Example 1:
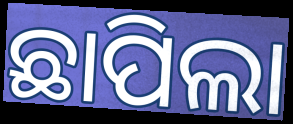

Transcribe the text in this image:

ଛାପିଲା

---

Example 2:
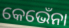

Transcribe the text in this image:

କେଭେଁନା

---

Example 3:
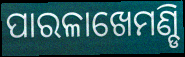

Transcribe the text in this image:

ପାରଳାଖେମଣ୍ଡି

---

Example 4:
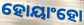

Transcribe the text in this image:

ହୋୟାଂହୋ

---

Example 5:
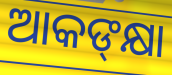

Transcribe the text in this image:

ଆକଙ୍‍କ୍ଷା